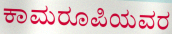
ಕಾಮರೂಪಿಯವರ